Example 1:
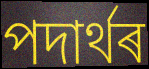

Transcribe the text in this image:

পদাৰ্থৰ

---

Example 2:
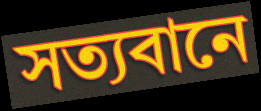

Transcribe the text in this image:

সত্যবানে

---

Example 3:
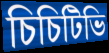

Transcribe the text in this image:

চিচিটিভি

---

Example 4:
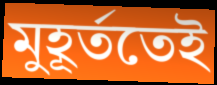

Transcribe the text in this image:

মুহূৰ্ততেই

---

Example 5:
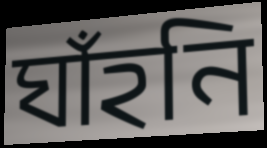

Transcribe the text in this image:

ঘাঁহনি